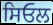
ਸਿਓਲ